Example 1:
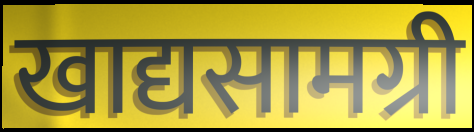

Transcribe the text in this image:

खाद्यसामग्री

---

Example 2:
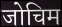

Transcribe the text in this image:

जोचिम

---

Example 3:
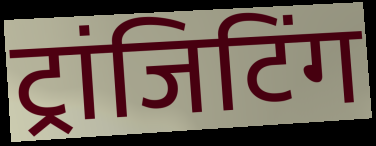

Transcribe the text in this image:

ट्रांजिटिंग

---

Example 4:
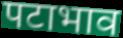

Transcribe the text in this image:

पटाभाव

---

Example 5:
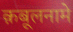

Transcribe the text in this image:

क़बूलनामे